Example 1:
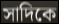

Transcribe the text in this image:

সাদিকে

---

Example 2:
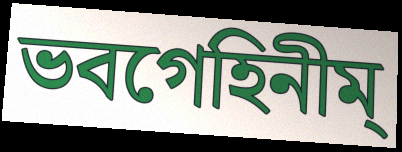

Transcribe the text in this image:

ভবগেহিনীম্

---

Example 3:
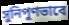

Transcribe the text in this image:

সুনিপুণভাবে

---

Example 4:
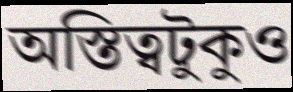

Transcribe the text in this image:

অস্তিত্বটুকুও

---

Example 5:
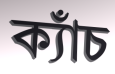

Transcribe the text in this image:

ক্যাঁচ